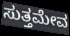
ಸುತ್ತಮೇವ